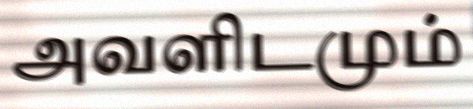
அவளிடமும்